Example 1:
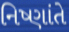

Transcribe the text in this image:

નિષ્ણાંતે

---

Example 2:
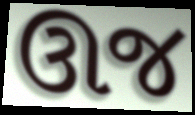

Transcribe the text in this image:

ઊજ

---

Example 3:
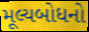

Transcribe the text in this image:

મૂલ્યબોધનો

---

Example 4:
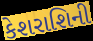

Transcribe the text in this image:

કેશરાશિની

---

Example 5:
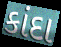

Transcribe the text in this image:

કાંદા